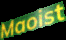
Maoist